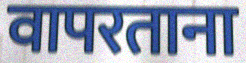
वापरताना